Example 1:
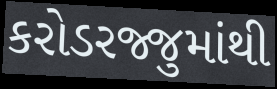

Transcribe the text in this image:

કરોડરજ્જુમાંથી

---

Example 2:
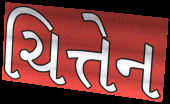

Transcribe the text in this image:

ચિત્તેન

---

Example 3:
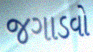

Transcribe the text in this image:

જગાડવો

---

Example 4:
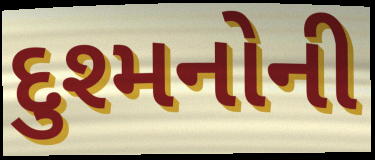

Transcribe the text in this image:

દુશ્મનોની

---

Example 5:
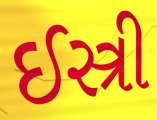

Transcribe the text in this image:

ઈસ્ત્રી